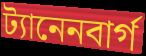
ট্যানেনবার্গ